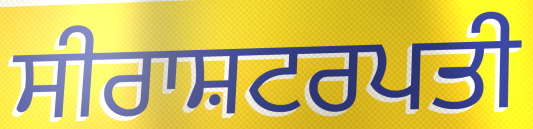
ਸੀਰਾਸ਼ਟਰਪਤੀ